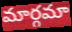
మార్గమా